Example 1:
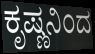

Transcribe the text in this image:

ಕೃಷ್ಣನಿಂದ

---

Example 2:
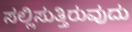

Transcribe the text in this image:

ಸಲ್ಲಿಸುತ್ತಿರುವುದು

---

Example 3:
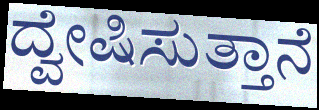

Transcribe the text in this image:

ದ್ವೇಷಿಸುತ್ತಾನೆ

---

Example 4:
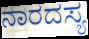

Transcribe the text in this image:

ನಾರದಸ್ಯ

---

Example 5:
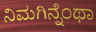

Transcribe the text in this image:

ನಿಮಗಿನ್ನೆಂಥಾ